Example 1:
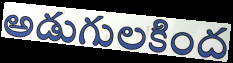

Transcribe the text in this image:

అడుగులకింద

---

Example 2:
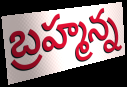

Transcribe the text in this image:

బ్రహ్మన్న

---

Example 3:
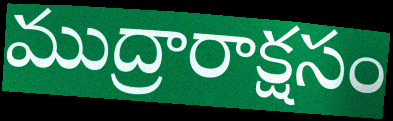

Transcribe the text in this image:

ముద్రారాక్షసం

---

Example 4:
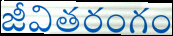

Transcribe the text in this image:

జీవితరంగం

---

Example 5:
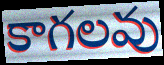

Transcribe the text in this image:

కాగలవు